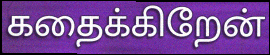
கதைக்கிறேன்